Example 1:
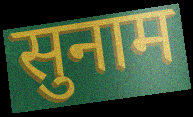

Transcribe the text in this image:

सुनाम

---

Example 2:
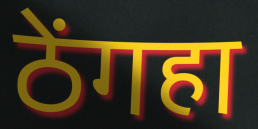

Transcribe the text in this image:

ठेंगहा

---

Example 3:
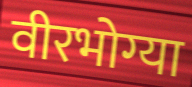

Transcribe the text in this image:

वीरभोग्या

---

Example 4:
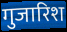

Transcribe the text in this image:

गुजारिश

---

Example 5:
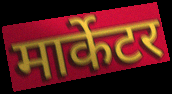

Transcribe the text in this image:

मार्केटर